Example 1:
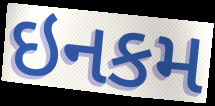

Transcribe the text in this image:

ઇનકમ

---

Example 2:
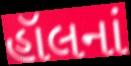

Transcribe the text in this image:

હૉલનાં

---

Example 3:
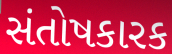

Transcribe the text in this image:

સંતોષકારક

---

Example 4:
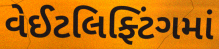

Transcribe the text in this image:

વેઈટલિફ્ટિંગમાં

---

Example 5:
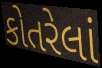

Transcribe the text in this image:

કોતરેલાં